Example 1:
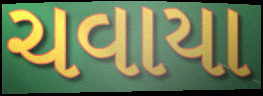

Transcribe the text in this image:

ચવાયા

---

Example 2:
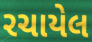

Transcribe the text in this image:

રચાયેલ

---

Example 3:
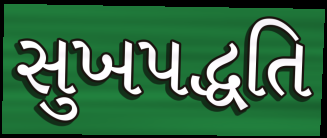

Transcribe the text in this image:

સુખપદ્ધતિ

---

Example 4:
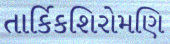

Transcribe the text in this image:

તાર્કિકશિરોમણિ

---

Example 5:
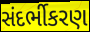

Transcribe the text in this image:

સંદર્ભીકરણ